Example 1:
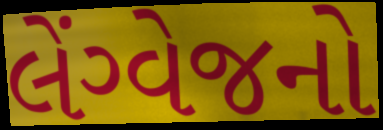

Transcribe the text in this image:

લેંગ્વેજનો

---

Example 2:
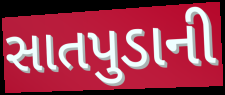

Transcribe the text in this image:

સાતપુડાની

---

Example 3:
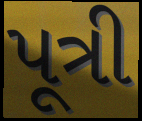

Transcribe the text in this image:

પૂત્રી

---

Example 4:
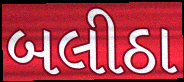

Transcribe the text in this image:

બલીઠા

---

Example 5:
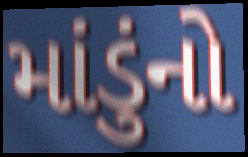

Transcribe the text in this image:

માંડુંનો